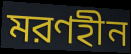
মরণহীন